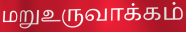
மறுஉருவாக்கம்